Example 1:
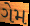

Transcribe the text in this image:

ગેમ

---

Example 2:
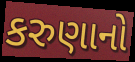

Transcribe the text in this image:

કરુણાનો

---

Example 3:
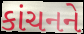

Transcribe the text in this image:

કાંચનને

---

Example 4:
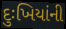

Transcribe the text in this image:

દુઃખિયાંની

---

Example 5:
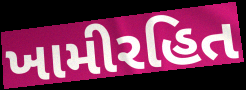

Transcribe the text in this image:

ખામીરહિત